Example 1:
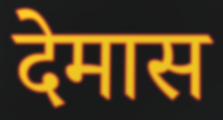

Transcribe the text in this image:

देमास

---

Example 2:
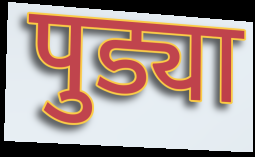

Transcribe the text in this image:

पुड्या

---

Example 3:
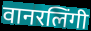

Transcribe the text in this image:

वानरलिंगी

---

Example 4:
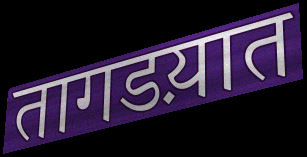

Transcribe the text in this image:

तागडय़ात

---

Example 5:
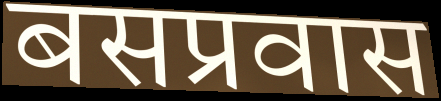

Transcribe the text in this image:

बसप्रवास